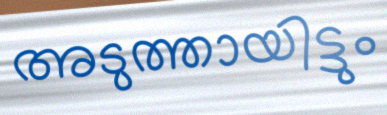
അടുത്തായിട്ടും